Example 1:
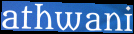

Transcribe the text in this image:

athwani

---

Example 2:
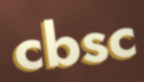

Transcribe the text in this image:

cbsc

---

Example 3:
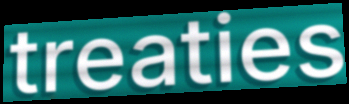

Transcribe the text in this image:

treaties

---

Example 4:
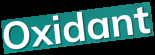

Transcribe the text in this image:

Oxidant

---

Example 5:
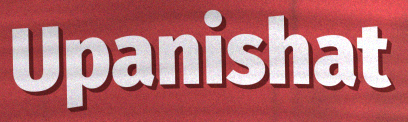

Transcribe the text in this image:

Upanishat